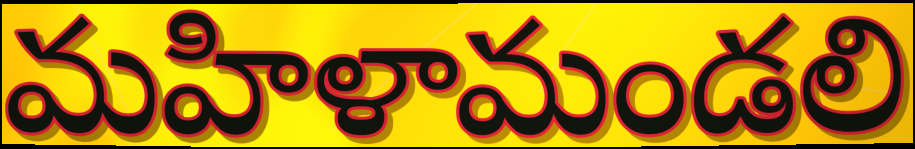
మహిళామండలి